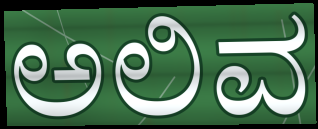
ಅಲಿವ